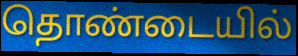
தொண்டையில்